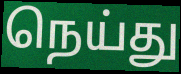
நெய்து